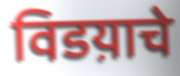
विडय़ाचे